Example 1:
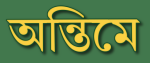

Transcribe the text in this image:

অন্তিমে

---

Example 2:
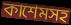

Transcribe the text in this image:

কাশেমসহ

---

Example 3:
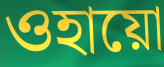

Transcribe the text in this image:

ওহায়ো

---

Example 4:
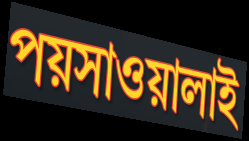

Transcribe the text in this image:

পয়সাওয়ালাই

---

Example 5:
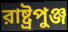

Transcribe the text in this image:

রাষ্ট্রপুঞ্জ